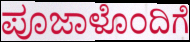
ಪೂಜಾಳೊಂದಿಗೆ